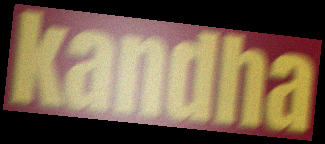
kandha